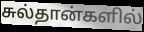
சுல்தான்களில்